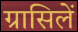
ग्रासिलें